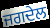
ਜਗਦੇਲ